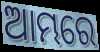
ଆମ୍ଭରେ